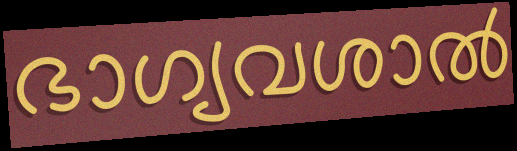
ഭാഗ്യവശാൽ